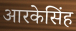
आरकेसिंह